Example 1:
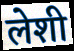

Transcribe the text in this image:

लेशी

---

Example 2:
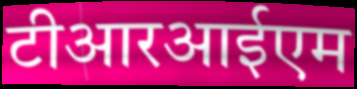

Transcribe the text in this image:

टीआरआईएम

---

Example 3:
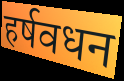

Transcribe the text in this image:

हर्षवधन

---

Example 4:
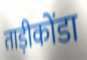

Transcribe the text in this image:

ताड़ीकोंडा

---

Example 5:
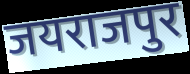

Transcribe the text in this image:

जयराजपुर